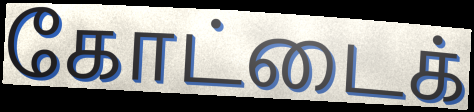
கோட்டைக்